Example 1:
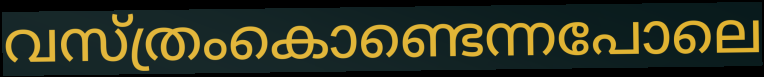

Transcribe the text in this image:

വസ്ത്രംകൊണ്ടെന്നപോലെ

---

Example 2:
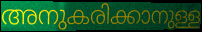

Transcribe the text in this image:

അനുകരിക്കാനുള്ള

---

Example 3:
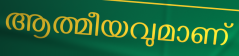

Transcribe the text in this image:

ആത്മീയവുമാണ്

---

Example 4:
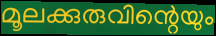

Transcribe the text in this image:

മൂലക്കുരുവിന്റെയും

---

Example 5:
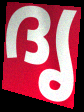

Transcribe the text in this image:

ദൃ